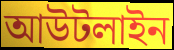
আউটলাইন